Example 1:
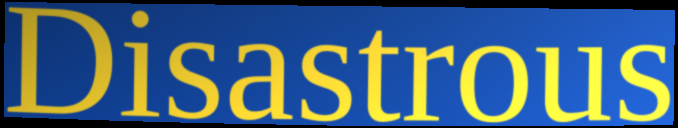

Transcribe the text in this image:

Disastrous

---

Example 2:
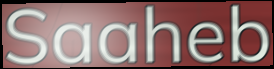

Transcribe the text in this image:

Saaheb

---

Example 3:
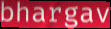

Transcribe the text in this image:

bhargav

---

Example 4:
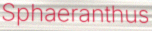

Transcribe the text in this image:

Sphaeranthus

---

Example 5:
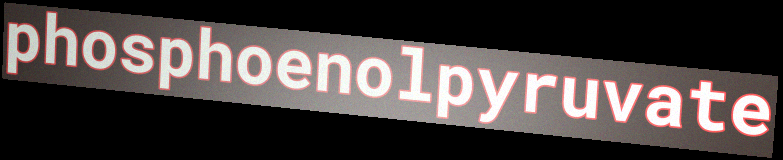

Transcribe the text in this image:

phosphoenolpyruvate